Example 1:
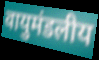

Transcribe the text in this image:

वायुमंडलीय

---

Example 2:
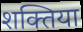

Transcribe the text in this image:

शक्तिया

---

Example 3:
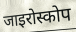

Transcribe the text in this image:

जाइरोस्कोप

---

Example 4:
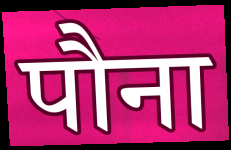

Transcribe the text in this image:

पौना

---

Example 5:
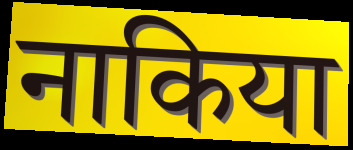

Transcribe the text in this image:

नाकिया